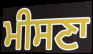
ਮੀਸਣਾ